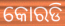
କୋରଡି